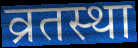
व्रतस्था